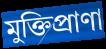
মুক্তিপ্রাণা